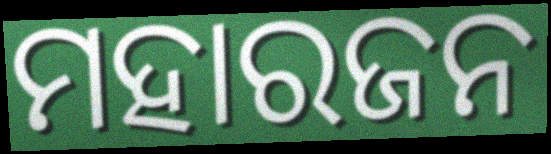
ମହାରଜନ